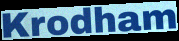
Krodham